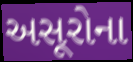
અસૂરોના